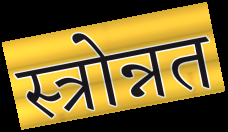
स्त्रोन्नत